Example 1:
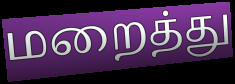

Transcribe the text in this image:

மறைத்து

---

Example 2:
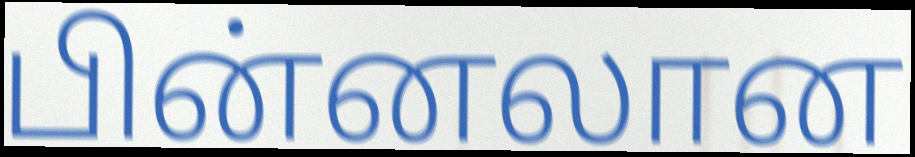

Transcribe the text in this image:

பின்னலான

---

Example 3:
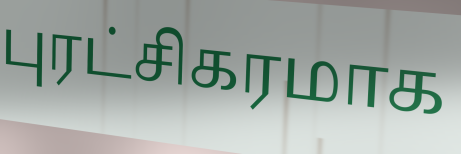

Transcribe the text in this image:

புரட்சிகரமாக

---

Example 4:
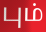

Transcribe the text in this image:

பும்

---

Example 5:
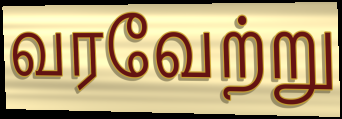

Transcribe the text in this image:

வரவேற்று